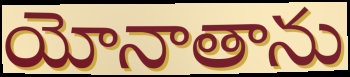
యోనాతాను